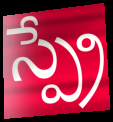
స్ప్రే